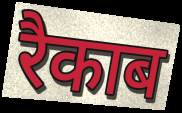
रैकाब